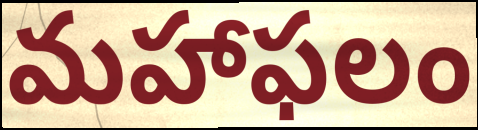
మహాఫలం